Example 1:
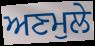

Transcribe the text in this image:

ਅਣਮੁਲੇ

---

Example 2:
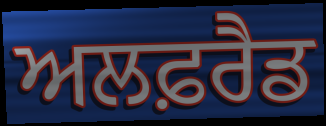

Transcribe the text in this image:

ਅਲਫ਼ਰੈਡ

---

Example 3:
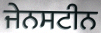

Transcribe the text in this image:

ਜੇਨਸਟੀਨ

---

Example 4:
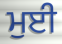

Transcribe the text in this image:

ਮੁਈ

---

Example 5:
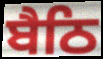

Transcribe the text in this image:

ਬੈਠਿ